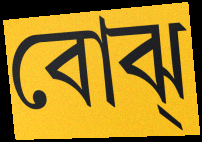
বোঝ্